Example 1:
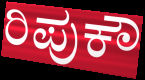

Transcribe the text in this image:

ರಿಪುಕೌ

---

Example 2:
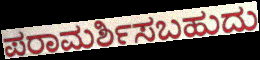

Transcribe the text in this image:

ಪರಾಮರ್ಶಿಸಬಹುದು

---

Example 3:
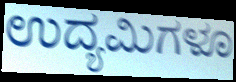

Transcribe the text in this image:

ಉದ್ಯಮಿಗಳೂ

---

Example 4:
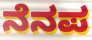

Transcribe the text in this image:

ನೆನಪ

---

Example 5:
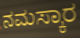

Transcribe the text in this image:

ನಮಸ್ಕಾರ